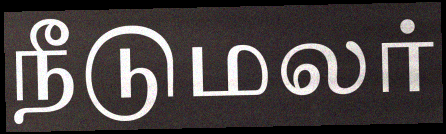
நீடுமலர்